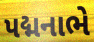
પદ્મનાભે